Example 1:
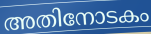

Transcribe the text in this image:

അതിനോടകം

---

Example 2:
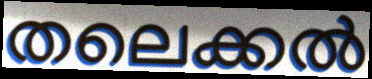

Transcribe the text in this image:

തലെക്കൽ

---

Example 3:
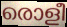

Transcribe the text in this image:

രൊളീ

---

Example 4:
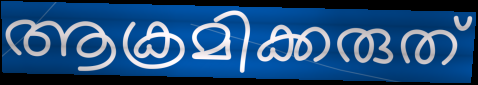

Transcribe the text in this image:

ആക്രമിക്കരുത്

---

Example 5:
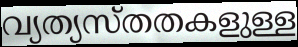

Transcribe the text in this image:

വ്യത്യസ്തതകളുള്ള